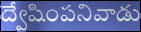
ద్వేషింపనివాడు